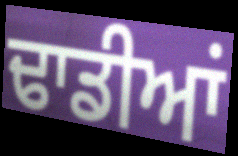
ਢਾਡੀਆਂ